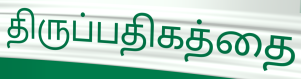
திருப்பதிகத்தை